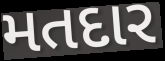
મતદાર